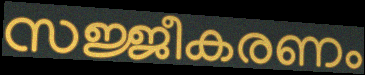
സജ്ജീകരണം